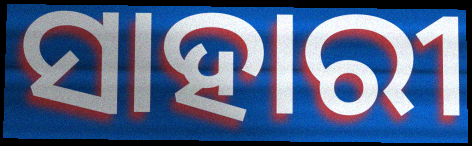
ସାହାରୀ